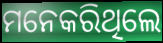
ମନେକରିଥିଲେ